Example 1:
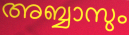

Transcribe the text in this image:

അബ്ബാസും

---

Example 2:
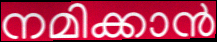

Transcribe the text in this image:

നമിക്കാൻ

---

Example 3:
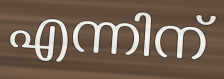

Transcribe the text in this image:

എന്നിന്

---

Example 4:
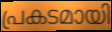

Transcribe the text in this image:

പ്രകടമായി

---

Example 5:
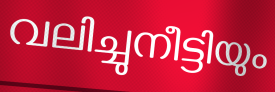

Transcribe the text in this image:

വലിച്ചുനീട്ടിയും